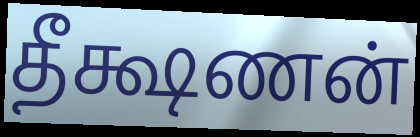
தீக்ஷணன்